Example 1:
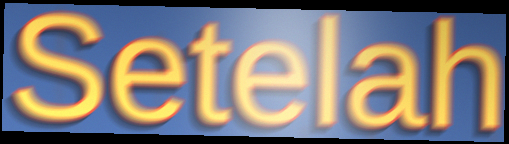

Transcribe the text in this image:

Setelah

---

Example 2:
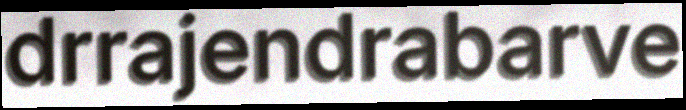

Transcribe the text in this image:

drrajendrabarve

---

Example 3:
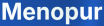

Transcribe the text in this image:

Menopur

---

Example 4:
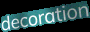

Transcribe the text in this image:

decoration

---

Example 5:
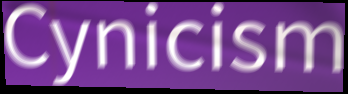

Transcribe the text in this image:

Cynicism